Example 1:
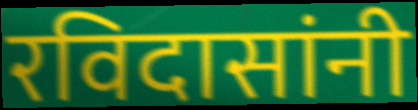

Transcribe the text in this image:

रविदासांनी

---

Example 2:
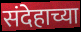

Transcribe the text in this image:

संदेहाच्या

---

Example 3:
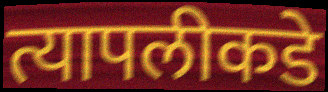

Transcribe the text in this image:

त्यापलीकडे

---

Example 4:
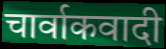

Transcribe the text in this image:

चार्वाकवादी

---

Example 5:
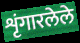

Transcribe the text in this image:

शृंगारलेले